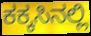
ಕಕ್ಕಸಿನಲ್ಲಿ